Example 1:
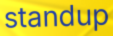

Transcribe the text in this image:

standup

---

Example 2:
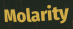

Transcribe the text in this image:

Molarity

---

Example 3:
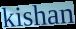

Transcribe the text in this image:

kishan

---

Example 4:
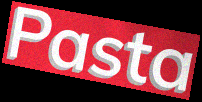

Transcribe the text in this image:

Pasta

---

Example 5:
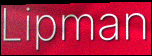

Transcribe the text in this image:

Lipman